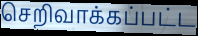
செறிவாக்கப்பட்ட